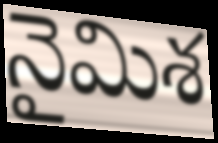
నైమిశ